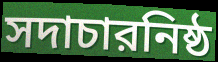
সদাচারনিষ্ঠ